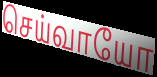
செய்வாயோ